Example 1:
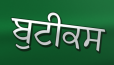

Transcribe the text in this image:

ਬੁਟੀਕਸ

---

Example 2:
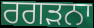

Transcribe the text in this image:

ਰਗੜਨਾ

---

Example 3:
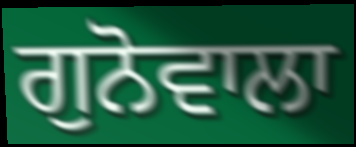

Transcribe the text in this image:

ਗੁਨੋਵਾਲਾ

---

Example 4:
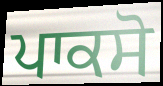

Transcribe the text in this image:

ਪਾਕਸੋ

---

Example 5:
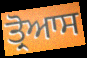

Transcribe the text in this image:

ਤ੍ਰੋਆਸ